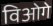
विओगे